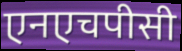
एनएचपीसी